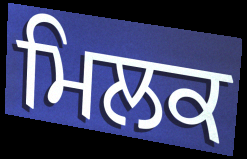
ਮਿਲਕ